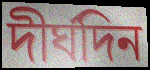
দীৰ্ঘদিন